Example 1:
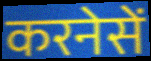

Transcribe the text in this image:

करनेसें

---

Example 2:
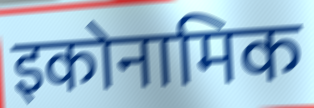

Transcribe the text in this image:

इकोनामिक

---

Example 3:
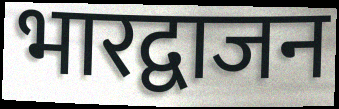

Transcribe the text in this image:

भारद्वाजन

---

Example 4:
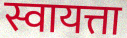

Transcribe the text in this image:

स्वायत्ता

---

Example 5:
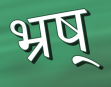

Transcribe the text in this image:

भ्रष्